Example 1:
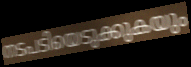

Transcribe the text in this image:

നടപടിയെടുക്കുകയും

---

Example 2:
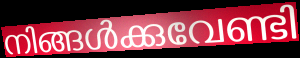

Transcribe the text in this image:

നിങ്ങൾക്കുവേണ്ടി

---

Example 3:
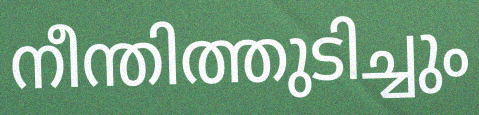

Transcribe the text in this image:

നീന്തിത്തുടിച്ചും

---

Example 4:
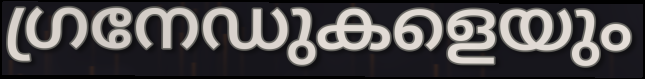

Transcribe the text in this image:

ഗ്രനേഡുകളെയും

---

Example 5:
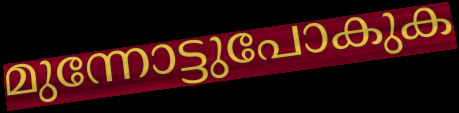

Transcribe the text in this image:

മുന്നോട്ടുപോകുക